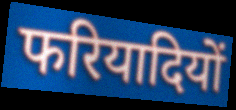
फरियादियों